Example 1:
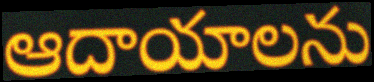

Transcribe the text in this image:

ఆదాయాలను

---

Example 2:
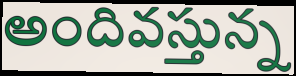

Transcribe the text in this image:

అందివస్తున్న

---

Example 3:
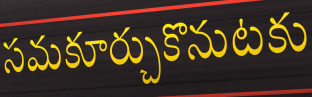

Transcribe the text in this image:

సమకూర్చుకొనుటకు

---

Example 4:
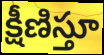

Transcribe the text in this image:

క్షీణిస్తూ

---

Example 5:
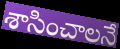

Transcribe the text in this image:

శాసించాలనే